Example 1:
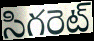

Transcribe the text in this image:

సిగరెట్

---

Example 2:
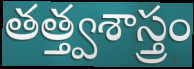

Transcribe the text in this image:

తత్త్వశాస్త్రం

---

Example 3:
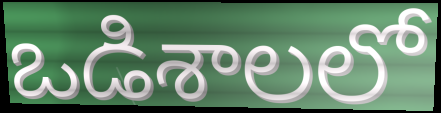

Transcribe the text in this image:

ఒడిశాలలో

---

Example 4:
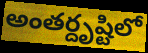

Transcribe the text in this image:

అంతర్దృష్టిలో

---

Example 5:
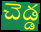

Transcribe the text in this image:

చెడ్డ